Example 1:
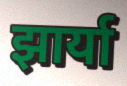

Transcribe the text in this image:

झार्या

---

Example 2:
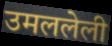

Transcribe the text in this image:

उमललेली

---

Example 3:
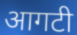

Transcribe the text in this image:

आगटी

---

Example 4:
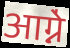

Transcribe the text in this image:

आग्ने॑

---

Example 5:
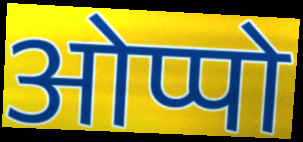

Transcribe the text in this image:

ओप्पो